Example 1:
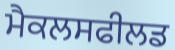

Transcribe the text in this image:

ਮੈਕਲਸਫੀਲਡ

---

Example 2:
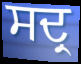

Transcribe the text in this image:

ਸਦ੍ਰ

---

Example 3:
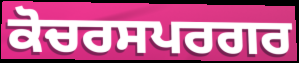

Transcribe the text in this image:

ਕੋਚਰਸਪਰਗਰ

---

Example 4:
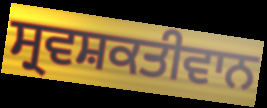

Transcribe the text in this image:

ਸ੍ਰਵਸ਼ਕਤੀਵਾਨ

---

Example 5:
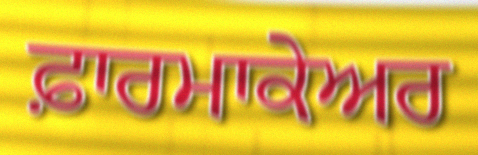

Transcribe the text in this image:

ਫ਼ਾਰਮਾਕੇਅਰ